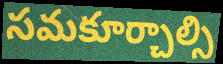
సమకూర్చాల్సి